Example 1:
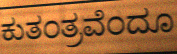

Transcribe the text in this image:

ಕುತಂತ್ರವೆಂದೂ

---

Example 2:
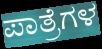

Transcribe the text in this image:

ಪಾತ್ರೆಗಳ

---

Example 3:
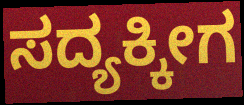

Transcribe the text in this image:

ಸದ್ಯಕ್ಕೀಗ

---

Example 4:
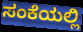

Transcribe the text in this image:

ಸಂಕೆಯಲ್ಲಿ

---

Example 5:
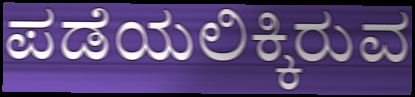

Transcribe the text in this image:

ಪಡೆಯಲಿಕ್ಕಿರುವ